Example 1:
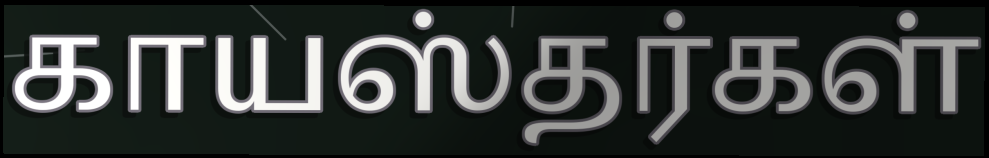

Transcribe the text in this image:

காயஸ்தர்கள்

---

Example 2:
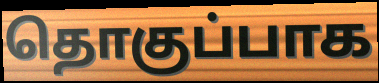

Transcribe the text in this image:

தொகுப்பாக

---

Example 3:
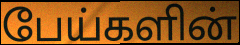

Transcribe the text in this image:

பேய்களின்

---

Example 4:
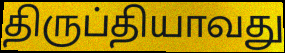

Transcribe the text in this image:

திருப்தியாவது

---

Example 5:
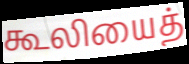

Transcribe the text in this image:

கூலியைத்